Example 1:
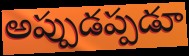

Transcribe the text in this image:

అప్పుడప్పడూ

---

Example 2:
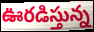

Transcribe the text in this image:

ఊరడిస్తున్న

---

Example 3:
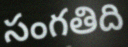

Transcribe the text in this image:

సంగతిది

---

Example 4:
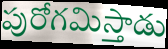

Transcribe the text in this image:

పురోగమిస్తాడు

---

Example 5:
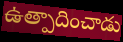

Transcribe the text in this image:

ఉత్పాదించాడు